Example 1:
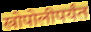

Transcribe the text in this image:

खोपोलीपर्यंत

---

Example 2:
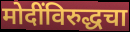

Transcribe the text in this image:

मोदींविरुद्धचा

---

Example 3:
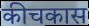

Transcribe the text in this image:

कीचकास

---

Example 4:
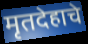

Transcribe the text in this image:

मृतदेहाचे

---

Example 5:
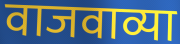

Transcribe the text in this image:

वाजवाव्या